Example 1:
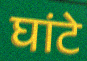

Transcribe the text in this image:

घांटे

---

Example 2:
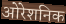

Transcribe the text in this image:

ओरेशनिक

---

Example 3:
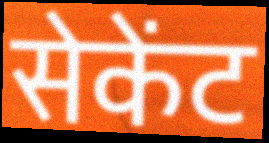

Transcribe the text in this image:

सेकेंट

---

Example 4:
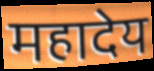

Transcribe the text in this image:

महादेय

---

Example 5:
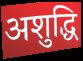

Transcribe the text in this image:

अशुद्धि